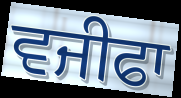
ਵਜੀਫਾ